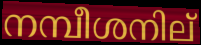
നമ്പീശനില്